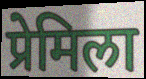
प्रेमिला